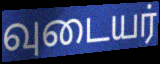
வுடையர்